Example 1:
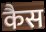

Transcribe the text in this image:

कैस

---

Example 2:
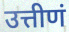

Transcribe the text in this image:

उत्तीणं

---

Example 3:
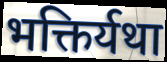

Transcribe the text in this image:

भक्तिर्यथा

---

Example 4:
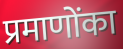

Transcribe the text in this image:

प्रमाणोंका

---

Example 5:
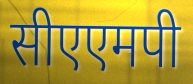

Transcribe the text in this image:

सीएएमपी